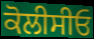
ਕੋਲੀਸੀਓ